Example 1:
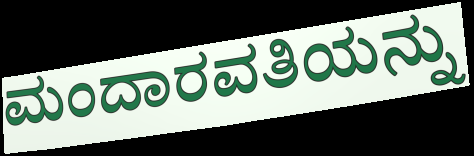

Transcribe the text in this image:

ಮಂದಾರವತಿಯನ್ನು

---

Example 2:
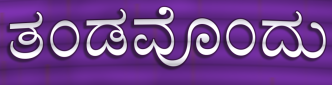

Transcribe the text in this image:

ತಂಡವೊಂದು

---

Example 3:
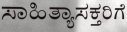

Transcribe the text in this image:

ಸಾಹಿತ್ಯಾಸಕ್ತರಿಗೆ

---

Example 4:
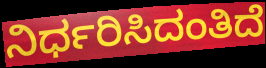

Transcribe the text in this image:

ನಿರ್ಧರಿಸಿದಂತಿದೆ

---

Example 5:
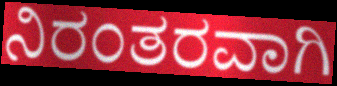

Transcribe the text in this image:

ನಿರಂತರವಾಗಿ